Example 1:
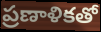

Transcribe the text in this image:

ప్రణాళికతో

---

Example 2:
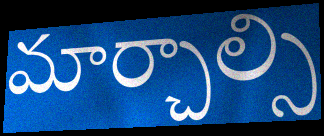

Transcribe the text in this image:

మార్చాల్సి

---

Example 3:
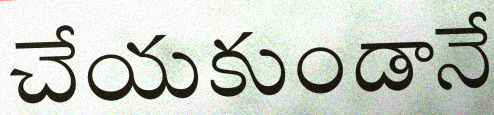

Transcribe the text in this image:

చేయకుండానే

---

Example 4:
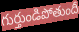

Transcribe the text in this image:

గుర్తుండిపోతుందీ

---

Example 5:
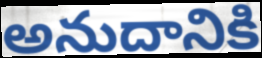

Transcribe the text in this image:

అనుదానికి